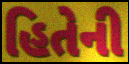
હિતેની